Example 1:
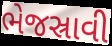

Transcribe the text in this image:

ભેજસ્રાવી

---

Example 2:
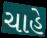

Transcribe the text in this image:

ચાહે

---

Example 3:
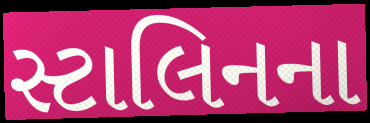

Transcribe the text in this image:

સ્ટાલિનના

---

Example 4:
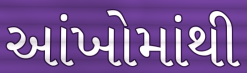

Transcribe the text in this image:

આંખોમાંથી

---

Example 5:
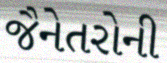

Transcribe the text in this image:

જૈનેતરોની